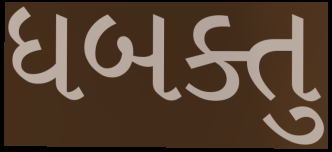
ધબક્તુ